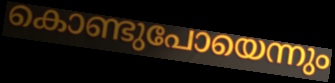
കൊണ്ടുപോയെന്നും